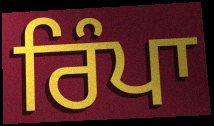
ਰਿੰਪਾ